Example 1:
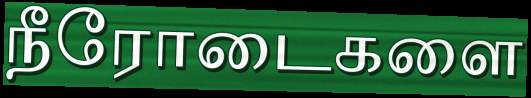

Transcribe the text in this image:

நீரோடைகளை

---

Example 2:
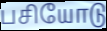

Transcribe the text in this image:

பசியோடு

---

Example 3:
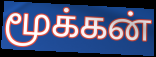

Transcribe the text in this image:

மூக்கன்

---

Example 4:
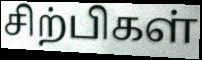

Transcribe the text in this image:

சிற்பிகள்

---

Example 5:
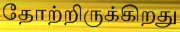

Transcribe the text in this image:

தோற்றிருக்கிறது